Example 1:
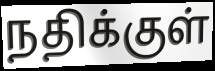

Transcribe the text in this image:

நதிக்குள்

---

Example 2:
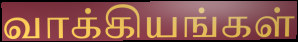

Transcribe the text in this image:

வாக்கியங்கள்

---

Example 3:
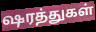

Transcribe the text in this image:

ஷரத்துகள்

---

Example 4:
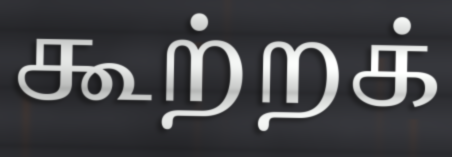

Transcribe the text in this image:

கூற்றக்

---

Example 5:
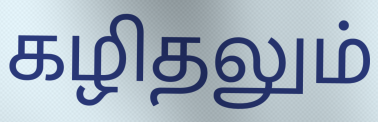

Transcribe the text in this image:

கழிதலும்